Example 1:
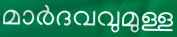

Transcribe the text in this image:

മാർദവവുമുള്ള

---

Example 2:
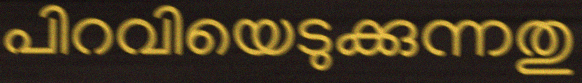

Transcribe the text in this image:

പിറവിയെടുക്കുന്നതു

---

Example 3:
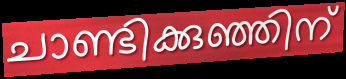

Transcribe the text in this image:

ചാണ്ടിക്കുഞ്ഞിന്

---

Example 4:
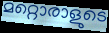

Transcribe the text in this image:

മറ്റൊരാളുടെ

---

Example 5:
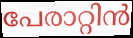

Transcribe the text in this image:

പേരാറ്റിൻ